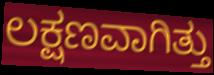
ಲಕ್ಷಣವಾಗಿತ್ತು